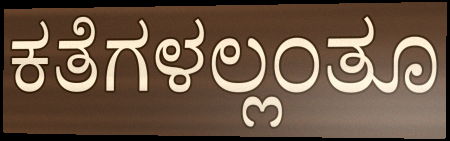
ಕತೆಗಳಲ್ಲಂತೂ